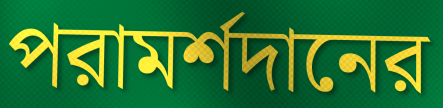
পরামর্শদানের